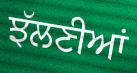
ਝੱਲਣੀਆਂ